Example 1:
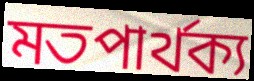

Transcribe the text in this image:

মতপাৰ্থক্য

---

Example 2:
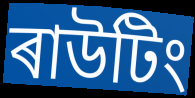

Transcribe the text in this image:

ৰাউটিং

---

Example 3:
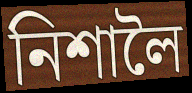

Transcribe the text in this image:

নিশালৈ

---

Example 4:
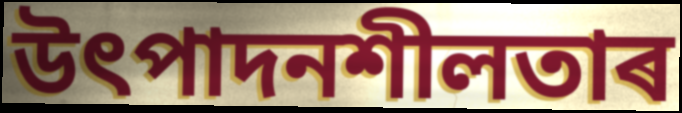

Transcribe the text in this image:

উৎপাদনশীলতাৰ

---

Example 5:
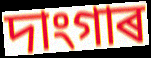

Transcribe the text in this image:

দাংগাৰ